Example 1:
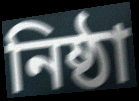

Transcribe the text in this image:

নিষ্ঠা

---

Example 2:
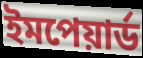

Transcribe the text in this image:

ইমপেয়াৰ্ড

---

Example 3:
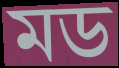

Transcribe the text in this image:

মড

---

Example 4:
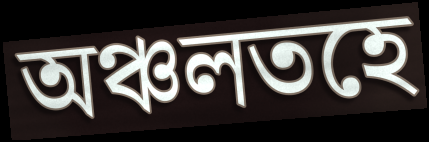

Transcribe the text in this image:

অঞ্চলতহে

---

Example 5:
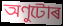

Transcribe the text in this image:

অণুটোৰ